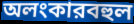
অলংকারবহুল